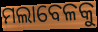
ମଲାବେଳକୁ